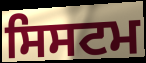
ਸਿਸਟਮ